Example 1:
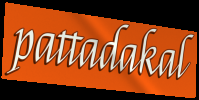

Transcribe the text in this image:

pattadakal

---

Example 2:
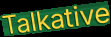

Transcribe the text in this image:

Talkative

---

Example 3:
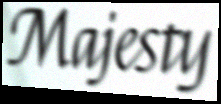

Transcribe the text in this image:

Majesty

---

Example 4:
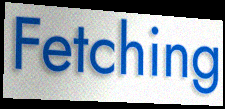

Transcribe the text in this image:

Fetching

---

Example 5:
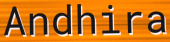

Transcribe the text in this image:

Andhira